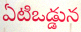
ఏటిఒడ్డున